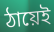
ঠায়েই